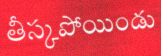
తీస్కపోయిండు